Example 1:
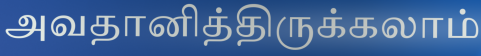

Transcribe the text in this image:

அவதானித்திருக்கலாம்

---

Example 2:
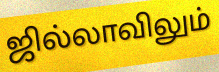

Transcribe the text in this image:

ஜில்லாவிலும்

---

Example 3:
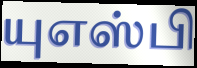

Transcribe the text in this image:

யுஎஸ்பி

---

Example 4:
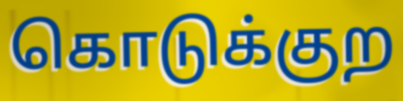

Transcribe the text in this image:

கொடுக்குற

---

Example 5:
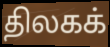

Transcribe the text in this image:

திலகக்